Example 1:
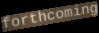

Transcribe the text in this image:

forthcoming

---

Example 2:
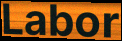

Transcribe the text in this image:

Labor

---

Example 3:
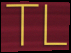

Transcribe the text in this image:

TL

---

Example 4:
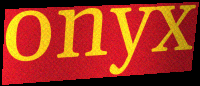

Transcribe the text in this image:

onyx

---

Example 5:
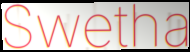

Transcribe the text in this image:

Swetha